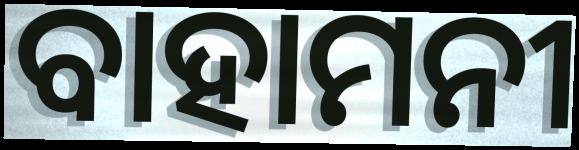
ବାହାମନୀ